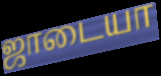
ஜாடையா